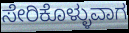
ಸೇರಿಕೊಳ್ಳುವಾಗ